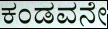
ಕಂಡವನೇ